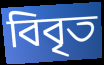
বিবৃত